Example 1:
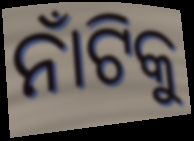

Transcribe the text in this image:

ନାଁଟିକୁ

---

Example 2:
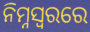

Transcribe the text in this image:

ନିମ୍ନସ୍ୱରରେ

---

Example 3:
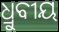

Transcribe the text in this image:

ଧ୍ରୁବୀୟ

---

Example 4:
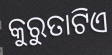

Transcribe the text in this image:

କୁରୁତାଟିଏ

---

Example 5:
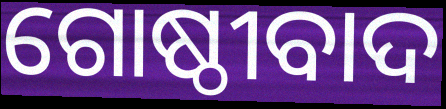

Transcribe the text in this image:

ଗୋଷ୍ଠୀବାଦ